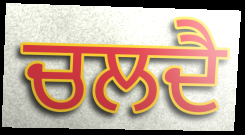
ਚਲਦੈ